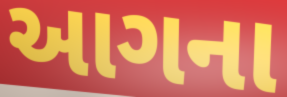
આગના